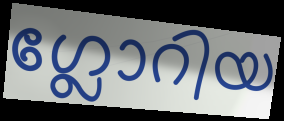
ഗ്ലോറിയ